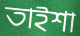
তাইশা